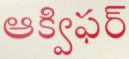
ఆక్విఫర్